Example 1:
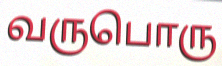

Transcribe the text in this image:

வருபொரு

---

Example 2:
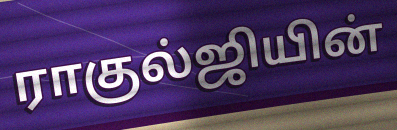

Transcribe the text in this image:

ராகுல்ஜியின்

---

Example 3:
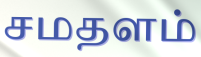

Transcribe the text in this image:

சமதளம்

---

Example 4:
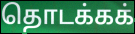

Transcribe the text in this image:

தொடக்கக்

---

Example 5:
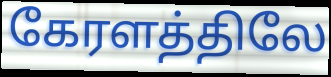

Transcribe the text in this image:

கேரளத்திலே